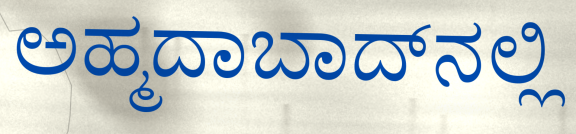
ಅಹ್ಮದಾಬಾದ್‍ನಲ್ಲಿ